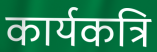
कार्यकत्रि